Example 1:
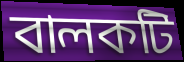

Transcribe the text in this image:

বালকটি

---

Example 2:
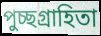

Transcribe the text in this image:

পুচ্ছগ্রাহিতা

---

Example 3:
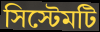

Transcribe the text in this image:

সিস্টেমটি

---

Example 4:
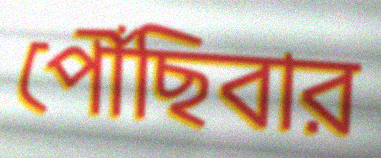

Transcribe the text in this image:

পৌঁছিবার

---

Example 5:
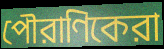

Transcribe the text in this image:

পৌরাণিকেরা